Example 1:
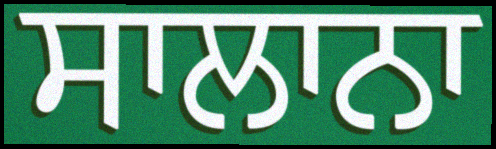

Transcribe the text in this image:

ਸਾਲਾਨਾ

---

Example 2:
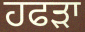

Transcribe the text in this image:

ਹਫੜਾ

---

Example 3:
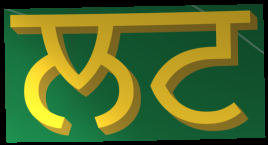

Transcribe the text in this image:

ਲਟ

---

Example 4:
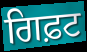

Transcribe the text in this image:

ਗਿਫ਼ਟ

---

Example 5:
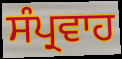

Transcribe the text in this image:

ਸੰਪ੍ਰਵਾਹ